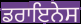
ਡਰਾਇਨੇਸ